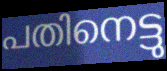
പതിനെട്ടു